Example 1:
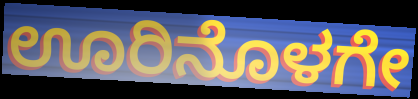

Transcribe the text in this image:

ಊರಿನೊಳಗೇ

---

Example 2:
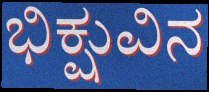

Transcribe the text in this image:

ಭಿಕ್ಷುವಿನ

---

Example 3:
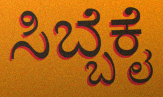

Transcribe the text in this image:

ಸಿಬ್ಬೆಕೈ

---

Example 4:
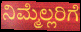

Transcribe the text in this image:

ನಿಮ್ಮೆಲ್ಲರಿಗೆ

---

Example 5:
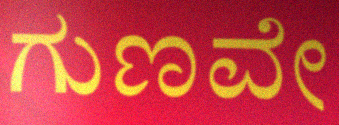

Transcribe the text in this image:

ಗುಣವೇ